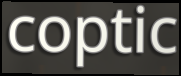
coptic